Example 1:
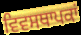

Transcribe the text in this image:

ਵਿਵਸਥਾਪਕਾਂ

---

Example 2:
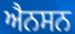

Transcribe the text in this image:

ਐਨਸਨ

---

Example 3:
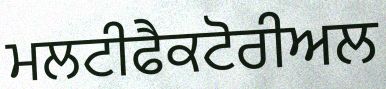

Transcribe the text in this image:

ਮਲਟੀਫੈਕਟੋਰੀਅਲ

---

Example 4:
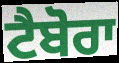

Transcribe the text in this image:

ਟੈਬੋਰਾ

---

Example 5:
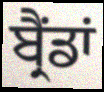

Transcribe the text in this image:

ਬ੍ਰੈਂਡਾਂ